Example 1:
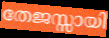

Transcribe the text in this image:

തേജസ്സായി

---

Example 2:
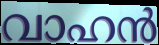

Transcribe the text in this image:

വാഹൻ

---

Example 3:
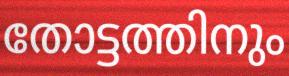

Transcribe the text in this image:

തോട്ടത്തിനും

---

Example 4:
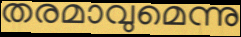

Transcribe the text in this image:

തരമാവുമെന്നു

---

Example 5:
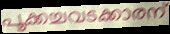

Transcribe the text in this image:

പൂക്കച്ചവടക്കാരന്